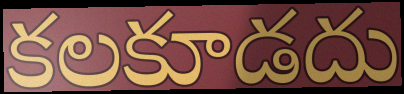
కలకూడదు